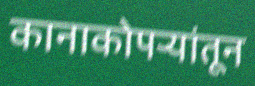
कानाकोपर्‍यांतून